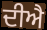
ਦੀਐ